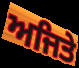
ਅਜਿਤੇ